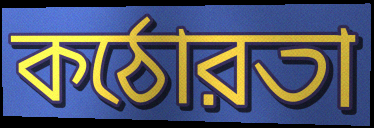
কঠোরতা